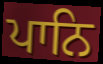
ਪਾਨਿ